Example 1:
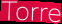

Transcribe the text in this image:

Torre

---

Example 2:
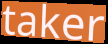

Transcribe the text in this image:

taker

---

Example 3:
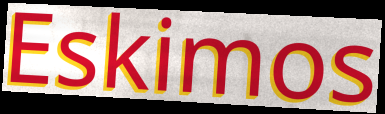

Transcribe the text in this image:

Eskimos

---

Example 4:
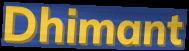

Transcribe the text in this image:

Dhimant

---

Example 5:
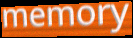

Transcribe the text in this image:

memory